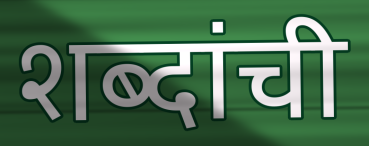
शब्दांची